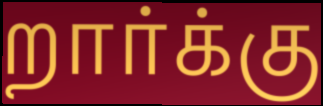
றார்க்கு